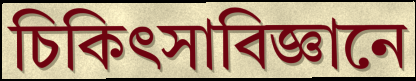
চিকিৎসাবিজ্ঞানে